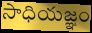
సాధియజ్ఞం